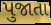
પુજાતા